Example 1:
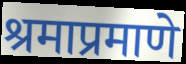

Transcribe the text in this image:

श्रमाप्रमाणे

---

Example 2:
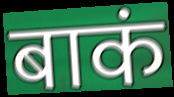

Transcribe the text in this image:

बाकं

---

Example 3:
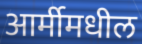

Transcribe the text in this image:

आर्मीमधील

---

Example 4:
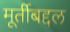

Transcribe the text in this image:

मूर्तीबद्दल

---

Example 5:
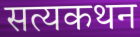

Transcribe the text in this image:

सत्यकथन